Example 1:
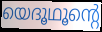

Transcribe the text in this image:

യെദൂഥൂന്റെ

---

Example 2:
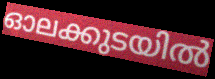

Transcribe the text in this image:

ഓലക്കുടയിൽ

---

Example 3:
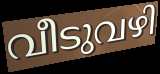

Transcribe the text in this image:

വീടുവഴി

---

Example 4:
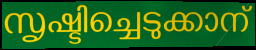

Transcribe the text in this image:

സൃഷ്ടിച്ചെടുക്കാന്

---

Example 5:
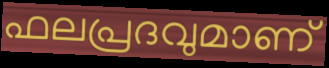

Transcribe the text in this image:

ഫലപ്രദവുമാണ്